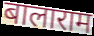
बालाराम